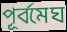
পূর্বমেঘ